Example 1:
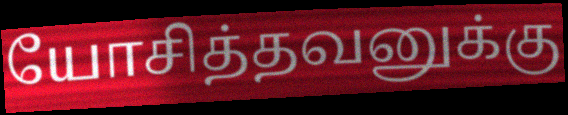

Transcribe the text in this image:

யோசித்தவனுக்கு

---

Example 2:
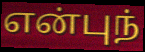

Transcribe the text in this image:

என்புந்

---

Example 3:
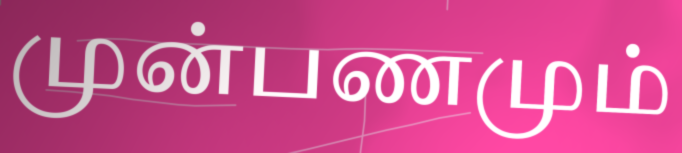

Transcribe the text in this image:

முன்பணமும்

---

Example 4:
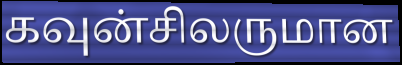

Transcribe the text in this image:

கவுன்சிலருமான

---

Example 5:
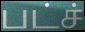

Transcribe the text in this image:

பட்ச்